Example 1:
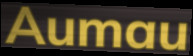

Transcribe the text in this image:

Aumau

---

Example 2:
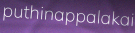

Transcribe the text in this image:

puthinappalakai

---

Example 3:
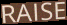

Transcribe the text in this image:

RAISE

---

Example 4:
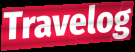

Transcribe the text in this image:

Travelog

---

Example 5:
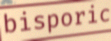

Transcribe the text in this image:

bisporic